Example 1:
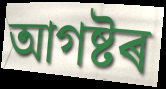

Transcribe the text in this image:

আগষ্টৰ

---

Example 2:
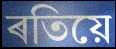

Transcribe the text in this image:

ৰতিয়ে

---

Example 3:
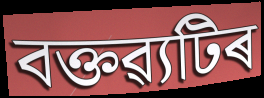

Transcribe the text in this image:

বক্তৱ্যটিৰ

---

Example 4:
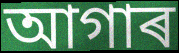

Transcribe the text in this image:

আগাৰ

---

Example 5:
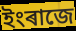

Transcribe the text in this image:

ইংৰাজে